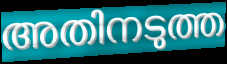
അതിനടുത്ത